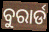
ବୁରାର୍ଡ